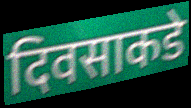
दिवसाकडे